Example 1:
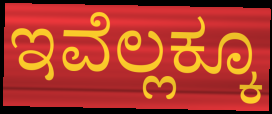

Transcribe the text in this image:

ಇವೆಲ್ಲಕ್ಕೂ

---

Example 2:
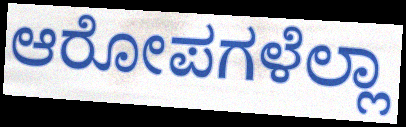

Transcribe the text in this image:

ಆರೋಪಗಳೆಲ್ಲಾ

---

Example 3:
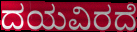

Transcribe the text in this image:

ದಯವಿರದೆ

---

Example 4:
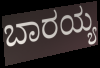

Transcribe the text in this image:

ಬಾರಯ್ಯ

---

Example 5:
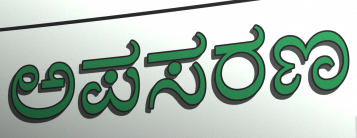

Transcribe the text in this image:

ಅಪಸರಣ